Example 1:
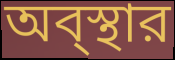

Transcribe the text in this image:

অব্স্থার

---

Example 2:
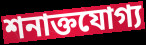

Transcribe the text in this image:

শনাক্তযোগ্য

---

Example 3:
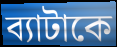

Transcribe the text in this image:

ব্যাটাকে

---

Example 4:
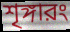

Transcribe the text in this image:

শৃঙ্গারং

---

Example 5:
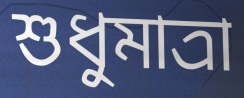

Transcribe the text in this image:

শুধুমাত্রা